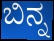
ಬಿನ್ನ